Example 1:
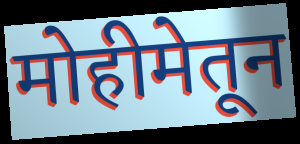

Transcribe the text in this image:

मोहीमेतून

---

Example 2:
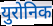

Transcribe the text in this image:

युरोनिक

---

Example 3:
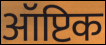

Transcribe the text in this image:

ऑप्टिक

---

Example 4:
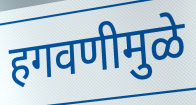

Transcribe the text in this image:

हगवणीमुळे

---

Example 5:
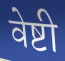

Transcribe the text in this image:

वेष्टी